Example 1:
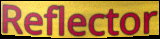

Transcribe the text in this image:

Reflector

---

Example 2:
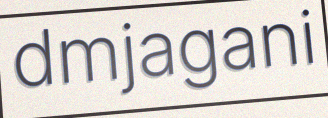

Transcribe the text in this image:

dmjagani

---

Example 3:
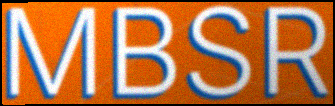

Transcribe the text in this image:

MBSR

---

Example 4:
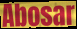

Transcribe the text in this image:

Abosar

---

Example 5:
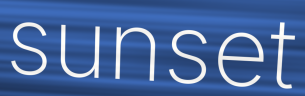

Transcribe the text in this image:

sunset